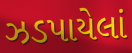
ઝડપાયેલાં